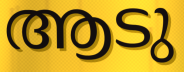
ആടു